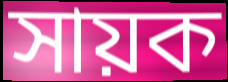
সায়ক